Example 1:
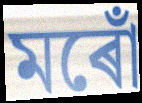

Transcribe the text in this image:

মৰোঁ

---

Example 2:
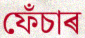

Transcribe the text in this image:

ফেঁচাৰ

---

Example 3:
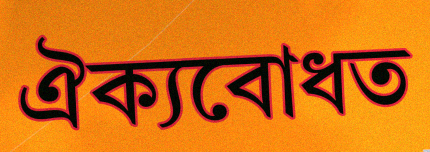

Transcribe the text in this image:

ঐক্যবোধত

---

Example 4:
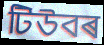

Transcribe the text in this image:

টিউবৰ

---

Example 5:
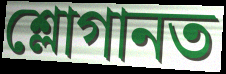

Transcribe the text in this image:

শ্লোগানত